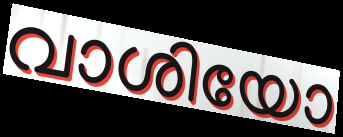
വാശിയോ